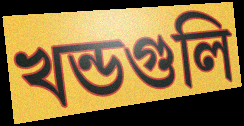
খন্ডগুলি